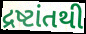
દ્રષ્ટાંતથી